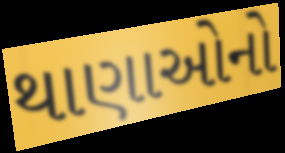
થાણાઓનો